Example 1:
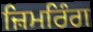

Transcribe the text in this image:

ਜ਼ਿਮਰਿੰਗ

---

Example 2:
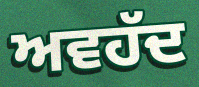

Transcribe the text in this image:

ਅਵਹੱਦ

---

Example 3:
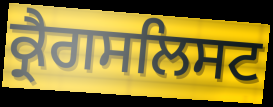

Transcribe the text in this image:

ਕ੍ਰੈਗਸਲਿਸਟ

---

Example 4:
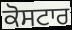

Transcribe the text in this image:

ਕੋਸਟਾਰ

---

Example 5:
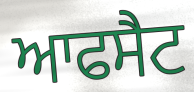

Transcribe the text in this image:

ਆਫਸੈਟ